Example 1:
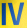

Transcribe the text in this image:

IV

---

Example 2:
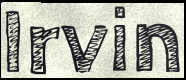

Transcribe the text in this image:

Irvin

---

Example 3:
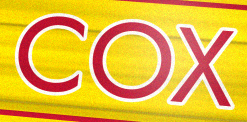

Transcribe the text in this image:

COX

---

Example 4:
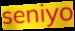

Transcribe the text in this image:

seniyo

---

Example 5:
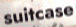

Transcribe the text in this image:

suitcase